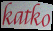
katko